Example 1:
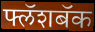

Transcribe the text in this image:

फ्लॅशबॅक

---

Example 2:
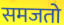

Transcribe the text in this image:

समजतो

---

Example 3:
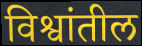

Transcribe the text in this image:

विश्वांतील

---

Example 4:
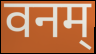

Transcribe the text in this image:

वनम्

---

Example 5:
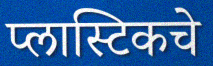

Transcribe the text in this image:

प्लास्टिकचे